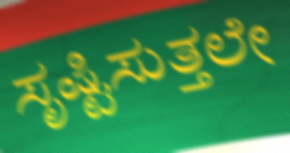
ಸೃಷ್ಟಿಸುತ್ತಲೇ